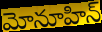
మోనూహిన్